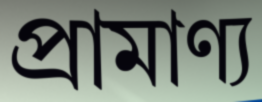
প্ৰামাণ্য